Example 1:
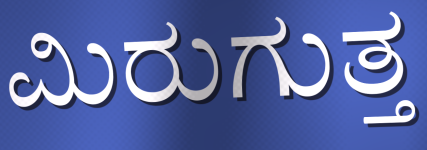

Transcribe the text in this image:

ಮಿರುಗುತ್ತ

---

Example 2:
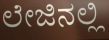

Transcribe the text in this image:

ಲೇಜಿನಲ್ಲಿ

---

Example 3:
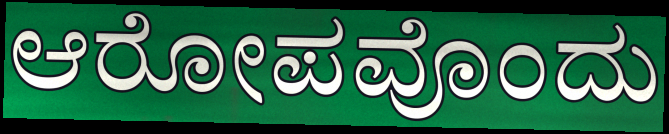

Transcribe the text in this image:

ಆರೋಪವೊಂದು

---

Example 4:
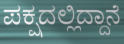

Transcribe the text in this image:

ಪಕ್ಷದಲ್ಲಿದ್ದಾನೆ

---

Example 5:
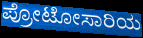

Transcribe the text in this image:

ಪ್ರೋಟೋಸಾರಿಯ